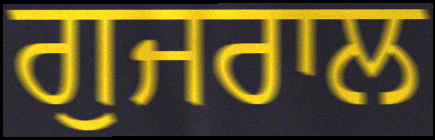
ਗੁਜਰਾਲ